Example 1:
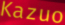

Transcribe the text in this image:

Kazuo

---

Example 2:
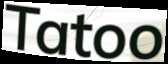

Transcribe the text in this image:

Tatoo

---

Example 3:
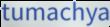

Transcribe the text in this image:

tumachya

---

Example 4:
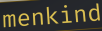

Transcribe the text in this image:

menkind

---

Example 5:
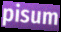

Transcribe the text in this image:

pisum